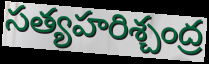
సత్యహరిశ్చంద్ర